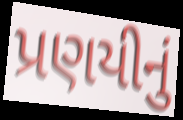
પ્રણયીનું